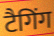
टैगिंग